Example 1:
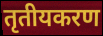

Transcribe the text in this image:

तृतीयकरण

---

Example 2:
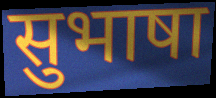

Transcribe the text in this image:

सुभाषा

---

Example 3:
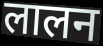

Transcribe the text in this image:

लालन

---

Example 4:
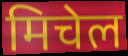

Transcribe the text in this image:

मिचेल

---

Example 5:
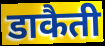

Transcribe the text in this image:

डाकैती